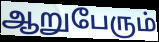
ஆறுபேரும்